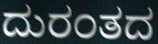
ದುರಂತದ